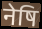
नेषि